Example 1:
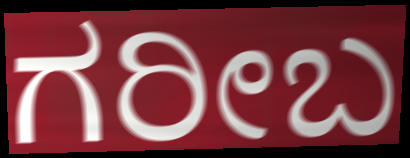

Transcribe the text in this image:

ಗರೀಬ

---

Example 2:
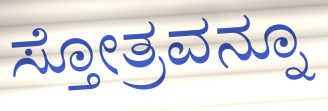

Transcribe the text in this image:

ಸ್ತೋತ್ರವನ್ನೂ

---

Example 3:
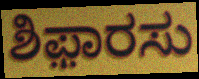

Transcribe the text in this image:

ಶಿಫ಼ಾರಸು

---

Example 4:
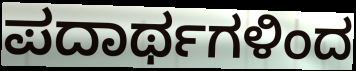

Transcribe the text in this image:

ಪದಾರ್ಥಗಳಿಂದ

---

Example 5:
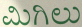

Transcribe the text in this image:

ಮಿಗಿಲು